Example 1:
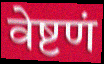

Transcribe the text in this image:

वेष्टणं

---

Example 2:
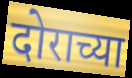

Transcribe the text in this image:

दोराच्या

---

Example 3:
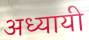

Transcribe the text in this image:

अध्यायी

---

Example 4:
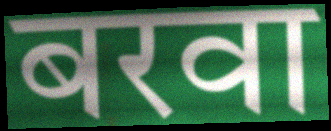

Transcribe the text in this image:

बरवा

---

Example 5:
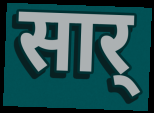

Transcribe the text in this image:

सार्